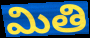
మితి